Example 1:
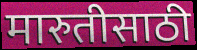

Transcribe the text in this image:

मारुतीसाठी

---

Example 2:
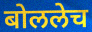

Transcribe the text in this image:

बोललेच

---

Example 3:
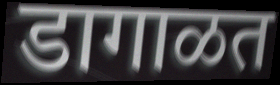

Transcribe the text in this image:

डागाळत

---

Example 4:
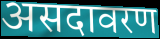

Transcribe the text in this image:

असदावरण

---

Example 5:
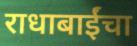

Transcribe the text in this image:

राधाबाईंचा